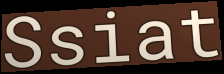
Ssiat